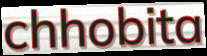
chhobita